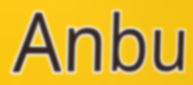
Anbu